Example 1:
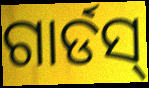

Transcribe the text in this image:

ଗାର୍ଡସ୍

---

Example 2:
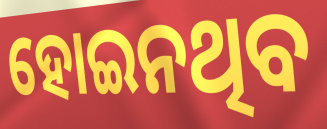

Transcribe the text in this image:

ହୋଇନଥିବ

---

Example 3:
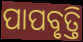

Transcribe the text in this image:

ପାପବୃତ୍ତି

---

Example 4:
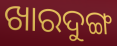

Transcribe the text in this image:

ଖାରଦୁଙ୍ଗ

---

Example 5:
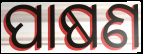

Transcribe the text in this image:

ପାଷଣ